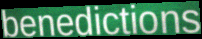
benedictions